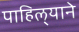
पाहिल्याने